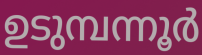
ഉടുമ്പന്നൂർ